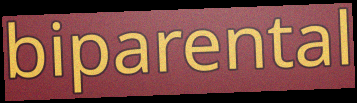
biparental